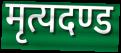
मृत्यदण्ड